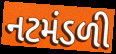
નટમંડળી